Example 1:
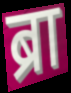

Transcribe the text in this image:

ब्रा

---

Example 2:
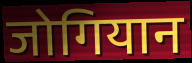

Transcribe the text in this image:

जोगियान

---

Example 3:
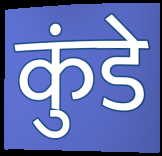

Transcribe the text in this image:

कुंडे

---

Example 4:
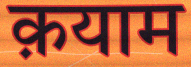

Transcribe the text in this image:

क़याम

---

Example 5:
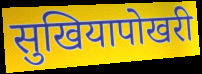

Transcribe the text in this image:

सुखियापोखरी